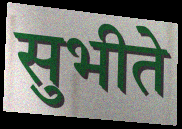
सुभीते